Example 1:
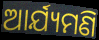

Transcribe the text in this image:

ଆର୍ଯ୍ୟମଣି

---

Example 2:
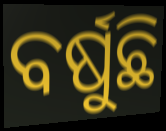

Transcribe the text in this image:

ବର୍ଷୁଛି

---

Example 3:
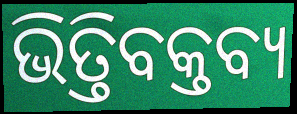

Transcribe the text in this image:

ଭିତ୍ତିବକ୍ତବ୍ୟ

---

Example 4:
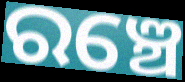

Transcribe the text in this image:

ରଞ୍ଚେ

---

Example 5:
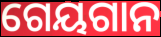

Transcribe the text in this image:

ଗେୟଗାନ